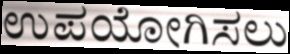
ಉಪಯೋಗಿಸಲು